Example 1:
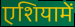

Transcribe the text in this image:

एशियामें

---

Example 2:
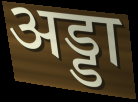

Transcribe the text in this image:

अड्डा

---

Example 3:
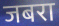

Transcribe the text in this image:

जबरा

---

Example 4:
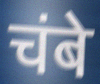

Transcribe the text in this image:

चंबे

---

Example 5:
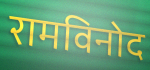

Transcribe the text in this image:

रामविनोद